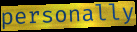
personally